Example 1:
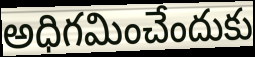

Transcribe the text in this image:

అధిగమించేందుకు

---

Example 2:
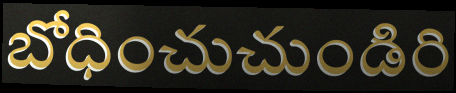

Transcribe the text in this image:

బోధించుచుండిరి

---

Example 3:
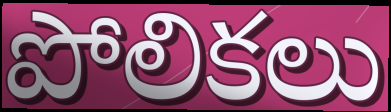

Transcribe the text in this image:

పోలికలు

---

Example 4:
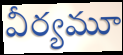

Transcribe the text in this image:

వీర్యమూ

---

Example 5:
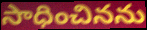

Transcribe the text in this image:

సాధించినను